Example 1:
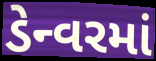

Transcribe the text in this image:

ડેન્વરમાં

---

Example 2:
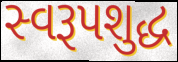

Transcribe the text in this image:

સ્વરૂપશુદ્ધ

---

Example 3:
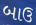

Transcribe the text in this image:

બાઉ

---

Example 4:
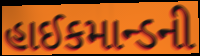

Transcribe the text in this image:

હાઈકમાન્ડની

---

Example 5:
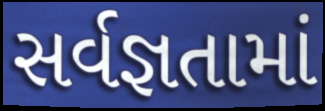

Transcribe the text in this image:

સર્વજ્ઞતામાં